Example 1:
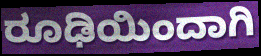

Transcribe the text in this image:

ರೂಢಿಯಿಂದಾಗಿ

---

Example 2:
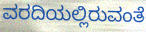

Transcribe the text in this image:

ವರದಿಯಲ್ಲಿರುವಂತೆ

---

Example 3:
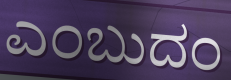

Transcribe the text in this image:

ಎಂಬುದಂ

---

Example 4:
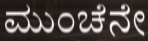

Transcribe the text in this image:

ಮುಂಚೆನೇ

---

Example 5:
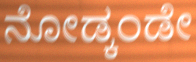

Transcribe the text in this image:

ನೋಡ್ಕಂಡೇ